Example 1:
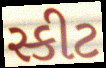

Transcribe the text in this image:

સ્કીટ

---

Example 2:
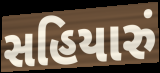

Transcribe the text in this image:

સહિયારું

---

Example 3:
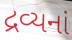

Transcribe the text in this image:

દ્રવ્યનાં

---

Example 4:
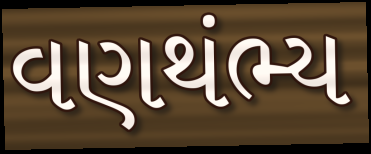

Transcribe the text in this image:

વણથંભ્ય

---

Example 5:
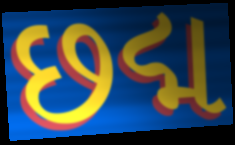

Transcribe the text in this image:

છદ્મ